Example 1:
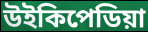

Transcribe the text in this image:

উইকিপেডিয়া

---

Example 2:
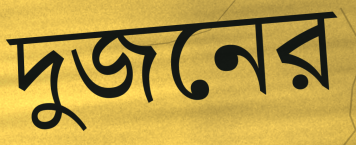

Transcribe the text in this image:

দুজনের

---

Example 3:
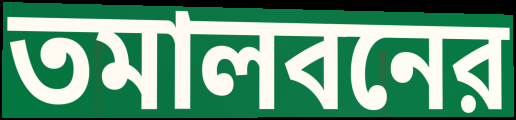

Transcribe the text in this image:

তমালবনের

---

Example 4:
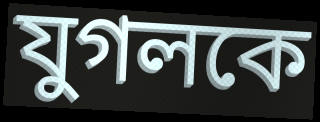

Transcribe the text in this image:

যুগলকে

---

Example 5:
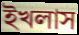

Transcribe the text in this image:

ইখলাস